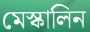
মেস্কালিন